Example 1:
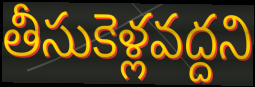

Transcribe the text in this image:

తీసుకెళ్లవద్దని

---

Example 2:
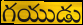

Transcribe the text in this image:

గయుడు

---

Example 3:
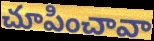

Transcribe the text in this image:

చూపించావా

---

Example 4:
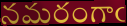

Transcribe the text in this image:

నమరంగాఁ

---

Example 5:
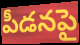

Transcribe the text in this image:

పీడనపై